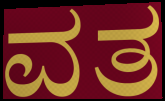
ವತ